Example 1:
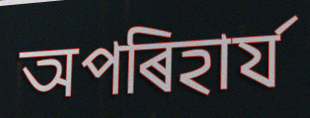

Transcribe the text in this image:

অপৰিহাৰ্য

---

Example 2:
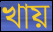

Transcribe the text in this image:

খায়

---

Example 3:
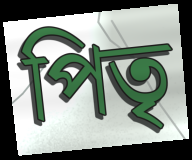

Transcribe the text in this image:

পিতৃ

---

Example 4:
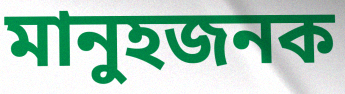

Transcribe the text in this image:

মানুহজনক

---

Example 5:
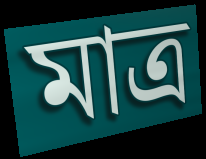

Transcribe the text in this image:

মাত্ৰ